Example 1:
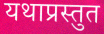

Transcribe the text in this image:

यथाप्रस्तुत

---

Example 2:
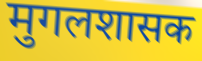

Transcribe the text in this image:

मुगलशासक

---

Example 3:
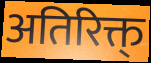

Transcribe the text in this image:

अतिरिक्त्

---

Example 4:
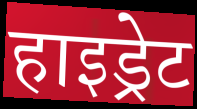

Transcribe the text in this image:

हाइड्रेट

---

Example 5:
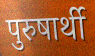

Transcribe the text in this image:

पुरुषार्थी